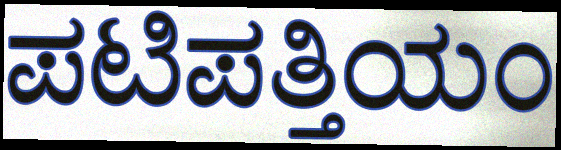
ಪಟಿಪತ್ತಿಯಂ